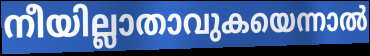
നീയില്ലാതാവുകയെന്നാൽ